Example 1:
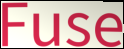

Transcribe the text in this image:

Fuse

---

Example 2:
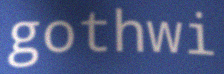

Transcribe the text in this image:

gothwi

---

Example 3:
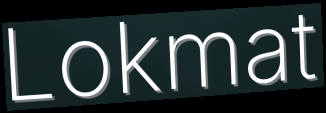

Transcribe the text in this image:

Lokmat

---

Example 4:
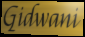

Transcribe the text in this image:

Gidwani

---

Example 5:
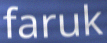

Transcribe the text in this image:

faruk